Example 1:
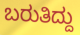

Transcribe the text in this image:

ಬರುತಿದ್ದು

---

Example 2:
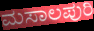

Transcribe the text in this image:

ಮಸಾಲಪುರಿ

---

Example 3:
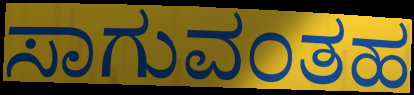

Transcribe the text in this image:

ಸಾಗುವಂತಹ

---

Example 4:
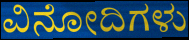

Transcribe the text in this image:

ವಿನೋದಿಗಳು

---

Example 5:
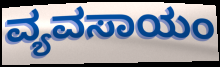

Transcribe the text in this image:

ವ್ಯವಸಾಯಂ